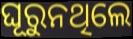
ଘୂରୁନଥିଲେ